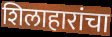
शिलाहारांचा